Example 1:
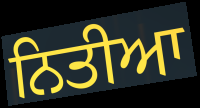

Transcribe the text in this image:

ਨਿਤੀਆ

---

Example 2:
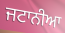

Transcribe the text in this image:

ਜਟਾਨੀਆ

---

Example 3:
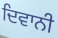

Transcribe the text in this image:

ਦਿਵਾਨੀ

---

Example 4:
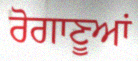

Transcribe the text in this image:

ਰੋਗਾਣੂਆਂ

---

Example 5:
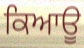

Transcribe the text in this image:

ਕਿਆਊ